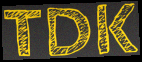
TDK